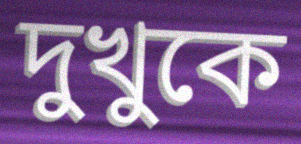
দুখুকে